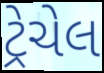
ટ્રેચેલ